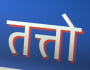
तत्तो